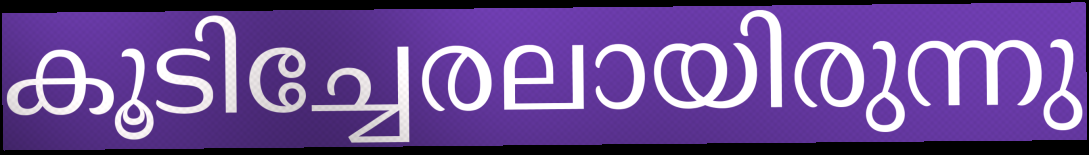
കൂടിച്ചേരലായിരുന്നു